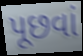
પૂછવાં